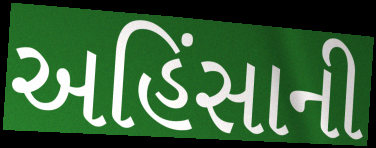
અહિંસાની